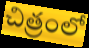
చిత్రంలో